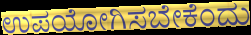
ಉಪಯೋಗಿಸಬೇಕೆಂದು